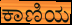
ಕಾಣಿಯ